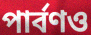
পার্বণও